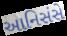
આનિસંસે